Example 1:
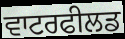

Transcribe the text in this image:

ਵਾਟਰਫੀਲਡ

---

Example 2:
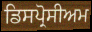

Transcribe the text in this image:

ਡਿਸਪ੍ਰੋਸੀਅਮ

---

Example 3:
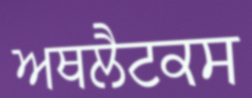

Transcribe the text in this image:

ਅਥਲੈਟਕਸ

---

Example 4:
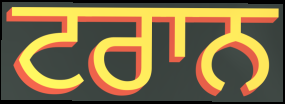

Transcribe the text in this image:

ਟਰਾਨ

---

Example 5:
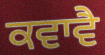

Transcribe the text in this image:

ਕਵਾਵੈ